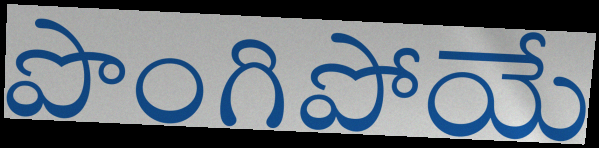
పొంగిపోయే